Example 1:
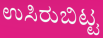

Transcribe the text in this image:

ಉಸಿರುಬಿಟ್ಟ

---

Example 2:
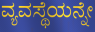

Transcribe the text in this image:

ವ್ಯವಸ್ಥೆಯನ್ನೇ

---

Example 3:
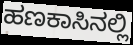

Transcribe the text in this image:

ಹಣಕಾಸಿನಲ್ಲಿ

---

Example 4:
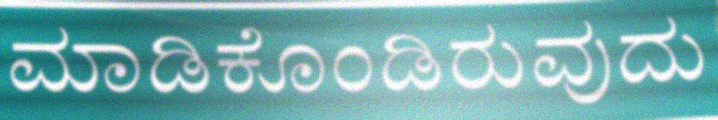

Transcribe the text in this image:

ಮಾಡಿಕೊಂಡಿರುವುದು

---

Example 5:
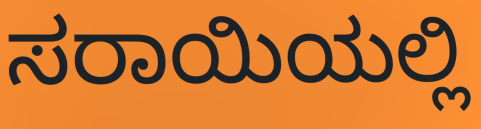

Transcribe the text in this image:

ಸರಾಯಿಯಲ್ಲಿ